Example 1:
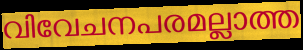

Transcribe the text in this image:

വിവേചനപരമല്ലാത്ത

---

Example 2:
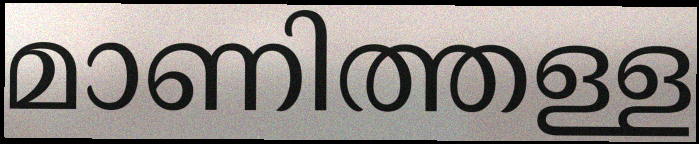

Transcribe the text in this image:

മാണിത്തള്ള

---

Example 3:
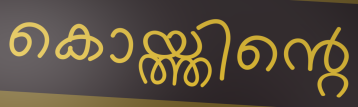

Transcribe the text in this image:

കൊയ്ത്തിന്റെ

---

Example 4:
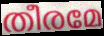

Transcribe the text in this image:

തീരമേ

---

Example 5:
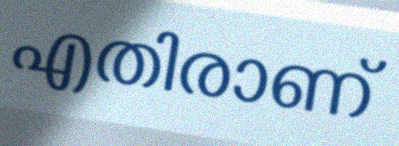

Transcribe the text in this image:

എതിരാണ്